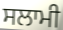
ਸਲਾਮੀ